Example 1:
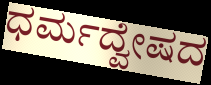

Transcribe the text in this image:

ಧರ್ಮದ್ವೇಷದ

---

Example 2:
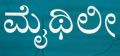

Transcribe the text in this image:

ಮೈಥಿಲೀ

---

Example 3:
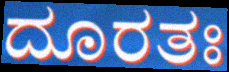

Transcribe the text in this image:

ದೂರತಃ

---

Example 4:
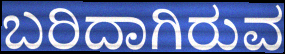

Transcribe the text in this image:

ಬರಿದಾಗಿರುವ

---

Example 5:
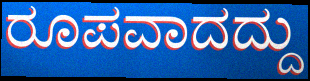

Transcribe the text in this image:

ರೂಪವಾದದ್ದು